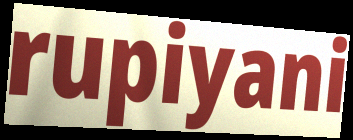
rupiyani